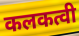
कलकत्वी